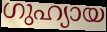
ഗുഹ്യായ